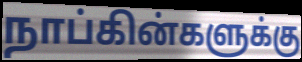
நாப்கின்களுக்கு